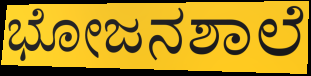
ಭೋಜನಶಾಲೆ